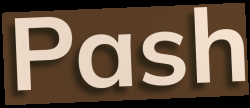
Pash